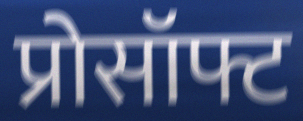
प्रोसॉफ्ट